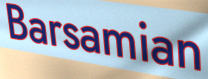
Barsamian